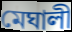
মেঘালী